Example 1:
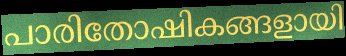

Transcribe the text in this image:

പാരിതോഷികങ്ങളായി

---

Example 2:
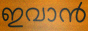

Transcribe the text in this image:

ഇവാൻ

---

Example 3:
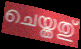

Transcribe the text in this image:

ചെയ്തതു്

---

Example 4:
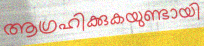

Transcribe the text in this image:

ആഗ്രഹിക്കുകയുണ്ടായി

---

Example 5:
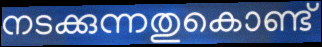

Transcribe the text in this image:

നടക്കുന്നതുകൊണ്ട്